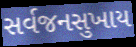
સર્વજનસુખાય